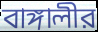
বাঙ্গালীর